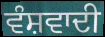
ਵੰਸ਼ਵਾਦੀ